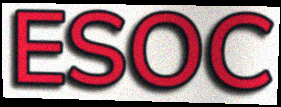
ESOC